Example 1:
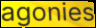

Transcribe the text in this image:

agonies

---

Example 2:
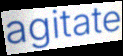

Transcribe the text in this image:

agitate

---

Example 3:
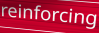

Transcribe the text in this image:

reinforcing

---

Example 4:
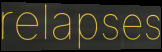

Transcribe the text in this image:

relapses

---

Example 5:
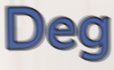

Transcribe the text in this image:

Deg